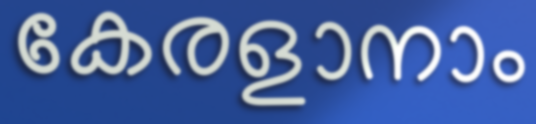
കേരളാനാം